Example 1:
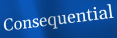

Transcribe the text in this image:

Consequential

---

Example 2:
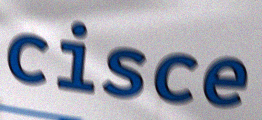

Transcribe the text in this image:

cisce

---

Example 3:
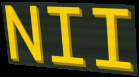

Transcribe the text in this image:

NII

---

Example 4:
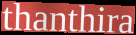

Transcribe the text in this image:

thanthira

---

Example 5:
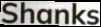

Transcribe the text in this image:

Shanks